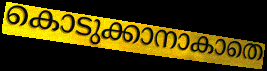
കൊടുക്കാനാകാതെ